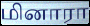
மினாரா